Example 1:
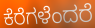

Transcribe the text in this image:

ಕೆರೆಗಳೆಂದರೆ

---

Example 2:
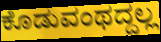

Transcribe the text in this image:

ಕೊಡುವಂಥದ್ದಲ್ಲ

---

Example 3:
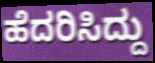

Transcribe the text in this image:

ಹೆದರಿಸಿದ್ದು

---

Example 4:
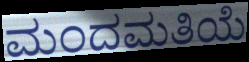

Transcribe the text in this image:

ಮಂದಮತಿಯೆ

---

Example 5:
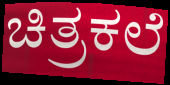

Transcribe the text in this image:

ಚಿತ್ರಕಲೆ